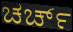
ಚರ್ಚ್